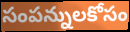
సంపన్నులకోసం